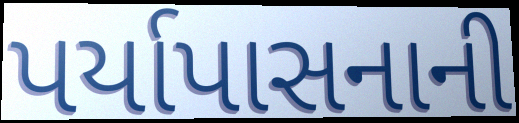
પર્યાપાસનાની